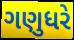
ગણુધરે